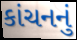
કાંચનનું